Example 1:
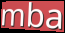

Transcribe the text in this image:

mba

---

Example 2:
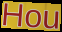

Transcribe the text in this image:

Hou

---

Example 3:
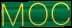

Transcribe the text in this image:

MOC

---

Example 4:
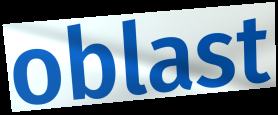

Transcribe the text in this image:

oblast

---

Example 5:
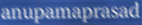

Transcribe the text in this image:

anupamaprasad